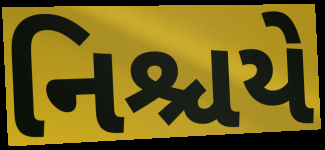
નિશ્ચયે